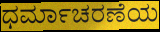
ಧರ್ಮಾಚರಣೆಯ